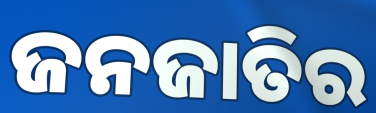
ଜନଜାତିର